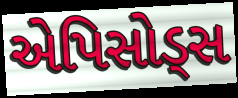
એપિસોડ્સ